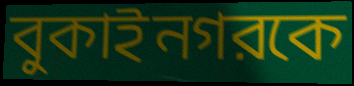
বুকাইনগরকে